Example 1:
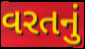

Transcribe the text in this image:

વરતનું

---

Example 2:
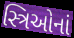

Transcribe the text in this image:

સ્ત્રિઓનાં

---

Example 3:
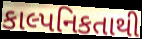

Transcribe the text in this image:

કાલ્પનિકતાથી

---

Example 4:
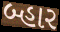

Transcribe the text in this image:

બ્હાર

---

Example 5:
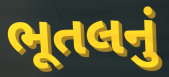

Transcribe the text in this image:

ભૂતલનું